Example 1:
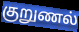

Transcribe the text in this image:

குறுணல்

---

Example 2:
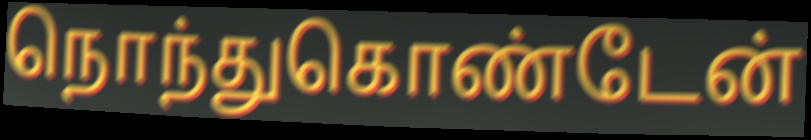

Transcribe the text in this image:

நொந்துகொண்டேன்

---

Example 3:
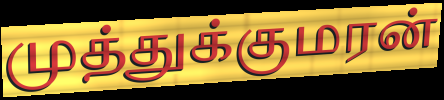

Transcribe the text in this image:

முத்துக்குமரன்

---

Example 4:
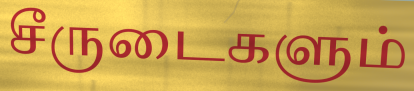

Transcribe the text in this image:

சீருடைகளும்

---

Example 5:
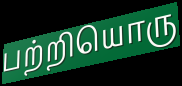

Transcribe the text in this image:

பற்றியொரு